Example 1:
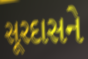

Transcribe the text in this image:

સૂરદાસને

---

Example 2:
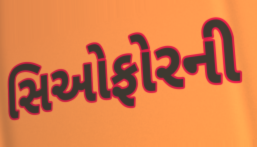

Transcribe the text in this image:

સિઓફોરની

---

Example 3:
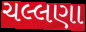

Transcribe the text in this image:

ચલ્લણા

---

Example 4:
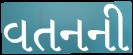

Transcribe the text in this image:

વતનની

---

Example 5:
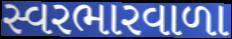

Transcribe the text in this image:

સ્વરભારવાળા